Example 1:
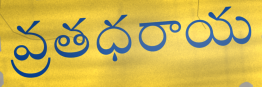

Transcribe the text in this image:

వ్రతధరాయ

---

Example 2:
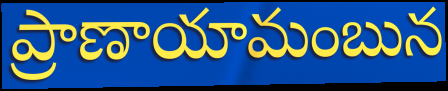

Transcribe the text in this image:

ప్రాణాయామంబున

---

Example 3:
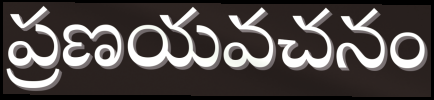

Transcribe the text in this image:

ప్రణయవచనం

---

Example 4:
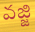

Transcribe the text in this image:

వజ్జి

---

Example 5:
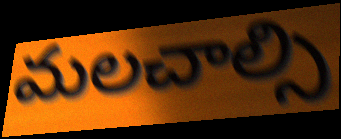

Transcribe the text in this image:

మలచాల్సి